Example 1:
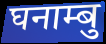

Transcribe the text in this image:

घनाम्बु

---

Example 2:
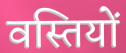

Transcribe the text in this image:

वस्तियों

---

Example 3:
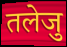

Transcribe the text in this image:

तलेजु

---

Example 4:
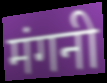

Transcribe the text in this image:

मंगनी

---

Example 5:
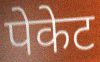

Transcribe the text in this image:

पेकेट